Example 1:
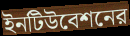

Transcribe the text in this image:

ইনটিউবেশনের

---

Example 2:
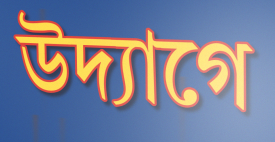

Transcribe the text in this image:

উদ্যাগে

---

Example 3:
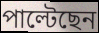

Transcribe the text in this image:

পাল্টেছেন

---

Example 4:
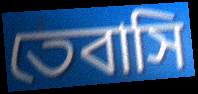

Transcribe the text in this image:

তেবাসি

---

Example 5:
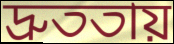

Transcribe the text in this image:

দ্রুততায়